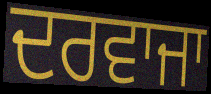
ਦਰਵਾਜਾ